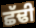
ਛੱਢੀ